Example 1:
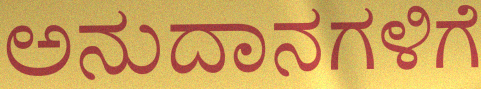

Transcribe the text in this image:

ಅನುದಾನಗಳಿಗೆ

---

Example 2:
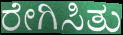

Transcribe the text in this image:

ರೇಗಿಸಿತು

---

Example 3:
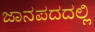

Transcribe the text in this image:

ಜಾನಪದದಲ್ಲಿ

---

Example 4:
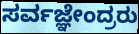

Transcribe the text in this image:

ಸರ್ವಜ್ಞೇಂದ್ರರು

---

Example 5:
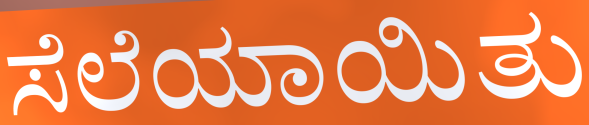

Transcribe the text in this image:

ಸೆಲೆಯಾಯಿತು